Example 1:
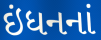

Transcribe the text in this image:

ઇંધનનાં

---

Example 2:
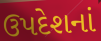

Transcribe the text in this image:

ઉપદેશનાં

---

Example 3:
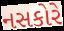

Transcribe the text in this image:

નસકોરે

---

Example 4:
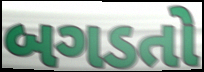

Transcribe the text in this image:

બગડતો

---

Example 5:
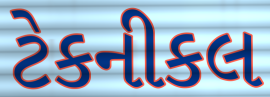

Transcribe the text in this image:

ટેકનીકલ